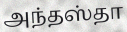
அந்தஸ்தா